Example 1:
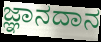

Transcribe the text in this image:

ಜ್ಞಾನದಾನ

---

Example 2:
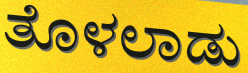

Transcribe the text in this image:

ತೊಳಲಾಡು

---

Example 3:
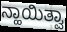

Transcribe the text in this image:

ನ್ಹಾಯಿತ್ವಾ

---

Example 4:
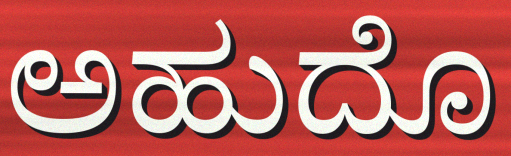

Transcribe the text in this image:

ಅಹುದೊ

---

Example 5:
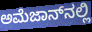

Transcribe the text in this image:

ಅಮೆಜಾನ್‌ನಲ್ಲಿ